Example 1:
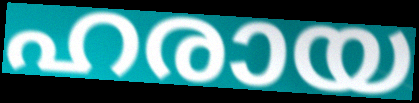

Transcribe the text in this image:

ഹരായ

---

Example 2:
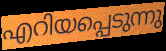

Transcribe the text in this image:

എറിയപ്പെടുന്നു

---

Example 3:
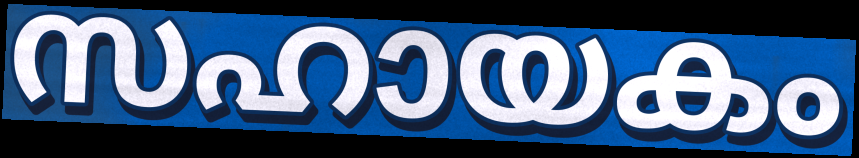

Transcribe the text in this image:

സഹായകം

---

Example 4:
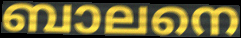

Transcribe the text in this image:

ബാലനെ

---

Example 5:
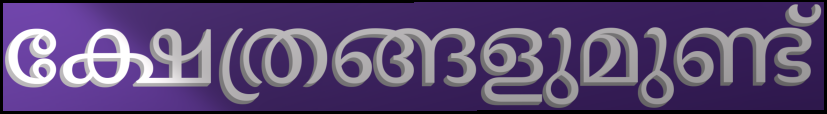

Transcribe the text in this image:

ക്ഷേത്രങ്ങളുമുണ്ട്